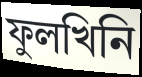
ফুলখিনি